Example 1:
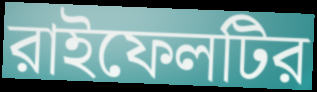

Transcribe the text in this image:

রাইফেলটির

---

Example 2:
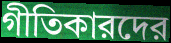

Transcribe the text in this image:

গীতিকারদের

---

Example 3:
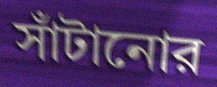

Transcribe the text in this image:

সাঁটানোর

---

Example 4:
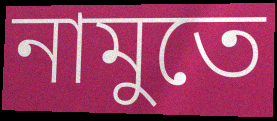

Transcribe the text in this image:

নামুতে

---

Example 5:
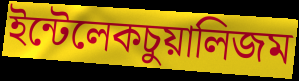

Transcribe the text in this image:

ইন্টেলেকচুয়ালিজম